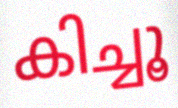
കിച്ചൂ